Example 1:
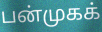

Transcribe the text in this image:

பன்முகக்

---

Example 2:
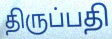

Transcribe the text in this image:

திருப்பதி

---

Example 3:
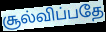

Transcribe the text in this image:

சூல்விப்பதே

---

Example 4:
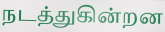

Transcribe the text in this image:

நடத்துகின்றன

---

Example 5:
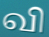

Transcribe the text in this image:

வி